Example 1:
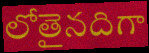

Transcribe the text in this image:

లోతైనదిగా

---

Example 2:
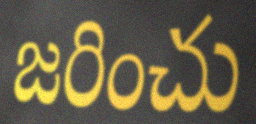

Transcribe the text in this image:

జరించు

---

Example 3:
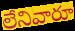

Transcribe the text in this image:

లేనివారూ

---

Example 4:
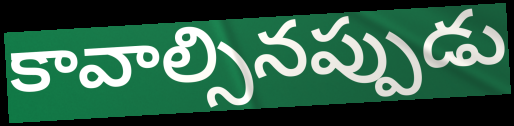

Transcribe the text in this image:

కావాల్సినప్పుడు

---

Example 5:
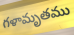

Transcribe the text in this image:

గళామృతము